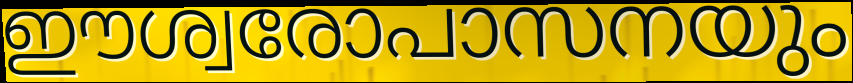
ഈശ്വരോപാസനയും